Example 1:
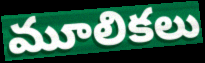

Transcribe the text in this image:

మూలికలు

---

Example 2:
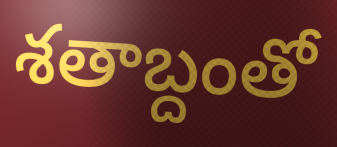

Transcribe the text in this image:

శతాబ్దంతో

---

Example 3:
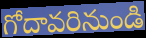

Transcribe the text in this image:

గోదావరినుండి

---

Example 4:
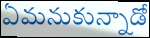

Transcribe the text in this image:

ఏమనుకున్నాడో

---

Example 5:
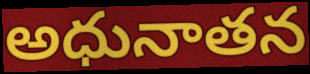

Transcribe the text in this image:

అధునాతన